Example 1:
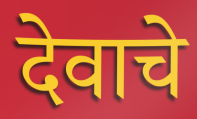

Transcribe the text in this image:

देवाचे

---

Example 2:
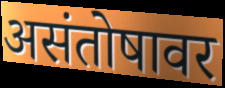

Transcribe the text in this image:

असंतोषावर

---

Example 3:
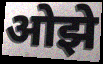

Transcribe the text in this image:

ओझे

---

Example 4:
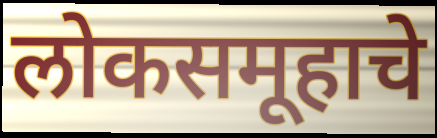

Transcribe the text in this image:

लोकसमूहाचे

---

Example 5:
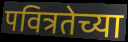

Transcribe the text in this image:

पवित्रतेच्या